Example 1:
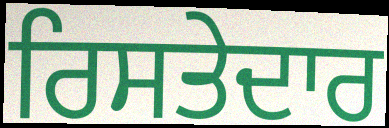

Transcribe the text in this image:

ਰਿਸਤੇਦਾਰ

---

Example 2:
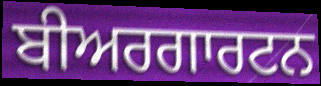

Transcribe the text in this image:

ਬੀਅਰਗਾਰਟਨ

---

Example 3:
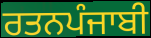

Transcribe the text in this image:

ਰਤਨਪੰਜਾਬੀ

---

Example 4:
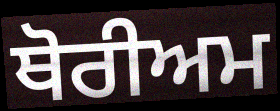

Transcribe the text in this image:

ਥੋਰੀਅਮ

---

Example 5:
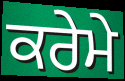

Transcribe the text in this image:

ਕਰੇਮੇ